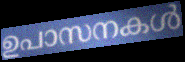
ഉപാസനകൾ